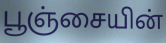
பூஞ்சையின்